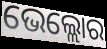
ଭେଲ୍ଲୋର